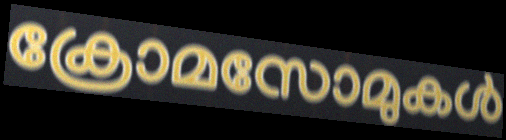
ക്രോമസോമുകൾ